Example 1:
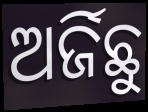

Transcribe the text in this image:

ଅର୍ଜିଛୁ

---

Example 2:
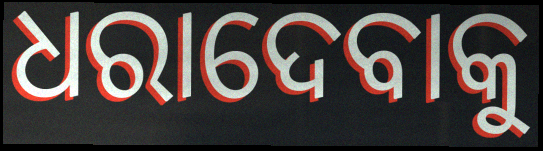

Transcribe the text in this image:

ଧରାଦେବାକୁ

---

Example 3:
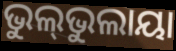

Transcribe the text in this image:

ଭୁଲ୍‌ଭୁଲାୟା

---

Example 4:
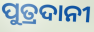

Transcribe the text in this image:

ପୁତ୍ରଦାନୀ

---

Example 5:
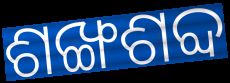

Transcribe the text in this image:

ଶଙ୍ଖଶବ୍ଦ